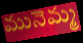
మునెమ్మ